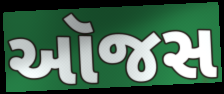
ઑજસ